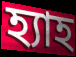
হ্যাহ